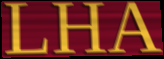
LHA